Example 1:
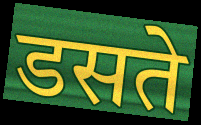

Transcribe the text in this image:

डसते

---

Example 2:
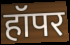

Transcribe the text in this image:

हॉपर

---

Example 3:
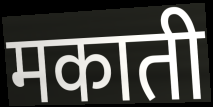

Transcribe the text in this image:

मकाती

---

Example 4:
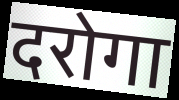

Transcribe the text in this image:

दरोगा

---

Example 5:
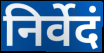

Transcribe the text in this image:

निर्वेदं